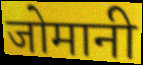
जोमानी